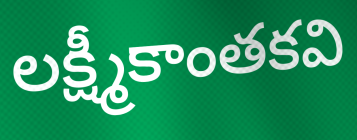
లక్ష్మీకాంతకవి